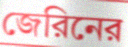
জেরিনের